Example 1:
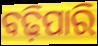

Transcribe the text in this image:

ବଢ଼ିପାରି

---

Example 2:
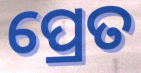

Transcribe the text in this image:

ପ୍ରେତ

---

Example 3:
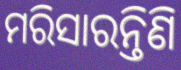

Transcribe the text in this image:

ମରିସାରନ୍ତିଣି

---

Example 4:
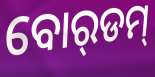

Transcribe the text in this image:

ବୋର୍‌ଡମ୍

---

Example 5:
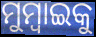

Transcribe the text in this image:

ମୁମ୍ୱାଇକୁ